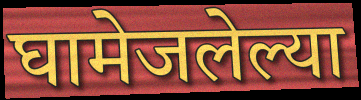
घामेजलेल्या